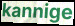
kannige